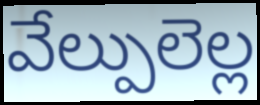
వేల్పులెల్ల